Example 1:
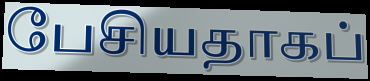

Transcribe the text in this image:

பேசியதாகப்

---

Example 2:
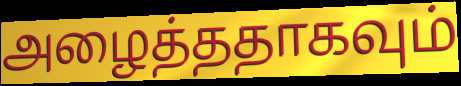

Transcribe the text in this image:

அழைத்ததாகவும்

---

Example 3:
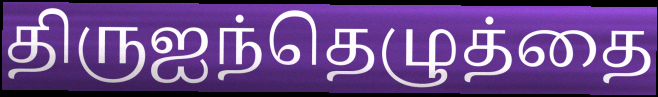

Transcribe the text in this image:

திருஐந்தெழுத்தை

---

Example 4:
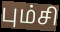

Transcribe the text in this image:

பும்சி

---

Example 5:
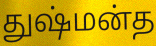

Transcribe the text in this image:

துஷ்மன்த